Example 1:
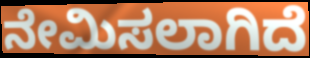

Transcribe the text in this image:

ನೇಮಿಸಲಾಗಿದೆ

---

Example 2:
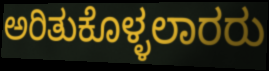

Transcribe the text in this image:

ಅರಿತುಕೊಳ್ಳಲಾರರು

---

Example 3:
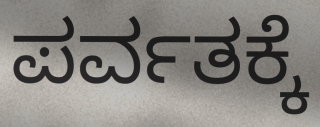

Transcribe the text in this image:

ಪರ್ವತಕ್ಕೆ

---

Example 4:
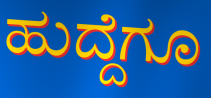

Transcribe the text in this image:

ಹುದ್ದೆಗೂ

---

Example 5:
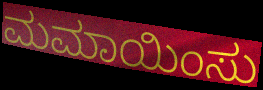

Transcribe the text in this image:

ಮಮಾಯಿಂಸು